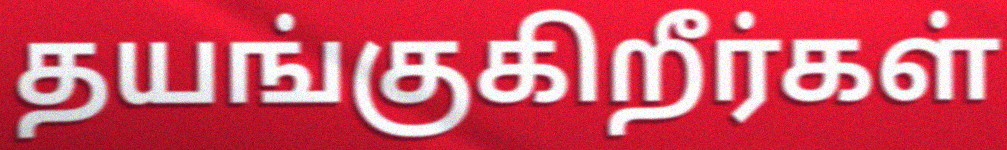
தயங்குகிறீர்கள்